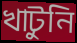
খাটুনি